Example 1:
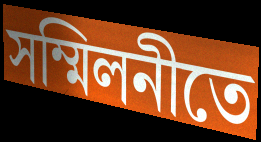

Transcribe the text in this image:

সম্মিলনীতে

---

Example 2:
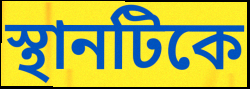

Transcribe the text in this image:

স্থানটিকে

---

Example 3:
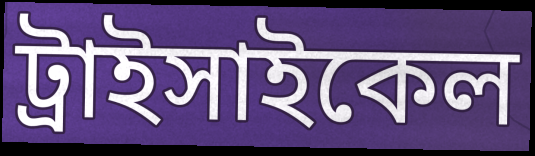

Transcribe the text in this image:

ট্রাইসাইকেল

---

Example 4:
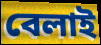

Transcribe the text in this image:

বেলাই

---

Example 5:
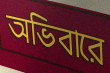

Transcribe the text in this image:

অভিবারে